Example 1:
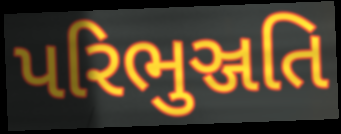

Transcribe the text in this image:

પરિભુઞ્જતિ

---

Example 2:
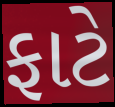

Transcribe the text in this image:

ફાટે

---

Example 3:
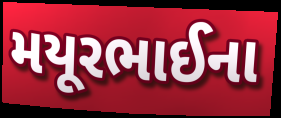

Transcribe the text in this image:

મયૂરભાઈના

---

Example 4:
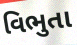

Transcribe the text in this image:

વિભુતા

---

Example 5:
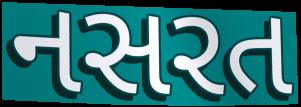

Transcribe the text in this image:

નસરત